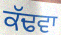
ਕੱਢਵਾ